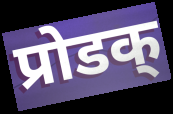
प्रोडक्